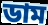
ডাম